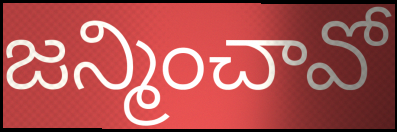
జన్మించావో